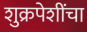
शुक्रपेशींचा